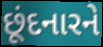
છૂંદનારને